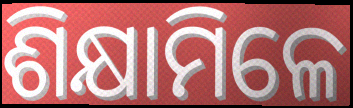
ଶିକ୍ଷାମିଳେ